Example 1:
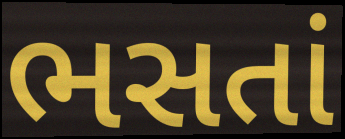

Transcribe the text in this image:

ભસતાં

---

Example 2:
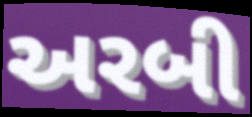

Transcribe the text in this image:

અરબી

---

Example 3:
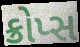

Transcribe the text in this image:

ક્રોપ્સ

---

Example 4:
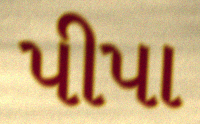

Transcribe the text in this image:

પીપા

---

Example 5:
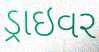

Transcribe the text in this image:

ડ્રાઇવર